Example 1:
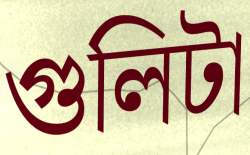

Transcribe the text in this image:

গুলিটা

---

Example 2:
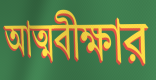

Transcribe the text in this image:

আত্মবীক্ষার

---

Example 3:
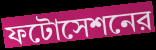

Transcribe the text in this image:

ফটোসেশনের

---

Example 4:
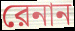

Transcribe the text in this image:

রেনান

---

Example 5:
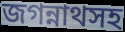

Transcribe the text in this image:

জগন্নাথসহ